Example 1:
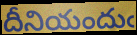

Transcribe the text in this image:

దీనియందుఁ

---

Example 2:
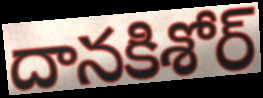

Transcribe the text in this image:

దానకిశోర్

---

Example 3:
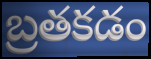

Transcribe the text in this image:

బ్రతకడం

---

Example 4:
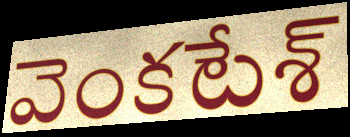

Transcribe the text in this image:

వెంకటేశ్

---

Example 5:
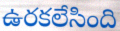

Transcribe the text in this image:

ఉరకలేసింది